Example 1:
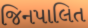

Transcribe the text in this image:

જિનપાલિત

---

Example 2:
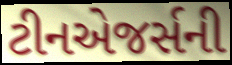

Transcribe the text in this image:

ટીનએજર્સની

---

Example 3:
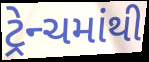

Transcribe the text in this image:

ટ્રેન્ચમાંથી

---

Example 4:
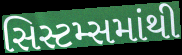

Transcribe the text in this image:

સિસ્ટમ્સમાંથી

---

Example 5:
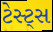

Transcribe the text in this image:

ટેસ્ટ્સ